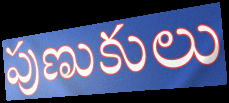
పుణుకులు